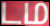
டம